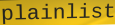
plainlist